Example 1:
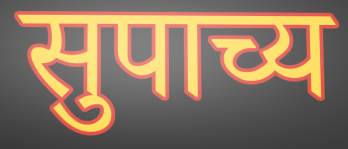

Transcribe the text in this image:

सुपाच्य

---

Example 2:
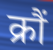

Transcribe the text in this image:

क्रौं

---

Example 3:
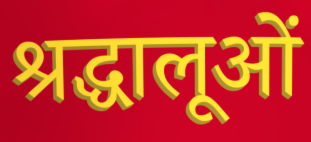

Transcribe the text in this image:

श्रद्धालूओं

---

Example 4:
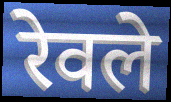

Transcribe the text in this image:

रेवले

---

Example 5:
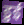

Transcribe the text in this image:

डुई